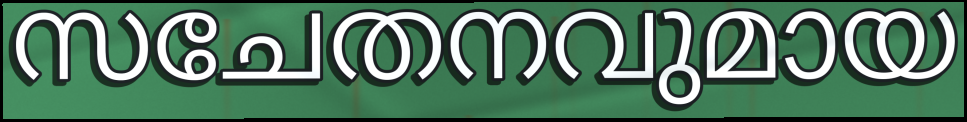
സചേതനവുമായ